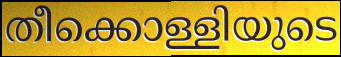
തീക്കൊള്ളിയുടെ